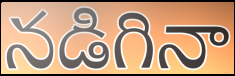
నడిగినా